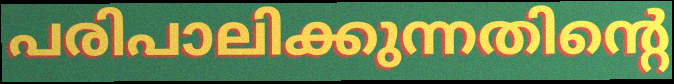
പരിപാലിക്കുന്നതിന്റെ